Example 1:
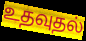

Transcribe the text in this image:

உதவுதல்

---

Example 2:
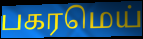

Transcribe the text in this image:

பகரமெய்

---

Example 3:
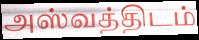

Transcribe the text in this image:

அஸ்வத்திடம்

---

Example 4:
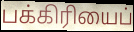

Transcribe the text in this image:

பக்கிரியைப்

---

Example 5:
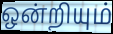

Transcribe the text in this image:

ஒன்றியும்